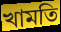
খামতি